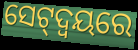
ସେଟ୍‌ଦ୍ଵୟରେ